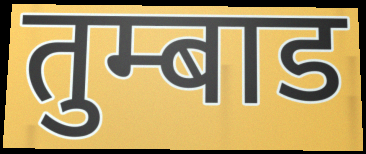
तुम्बाड